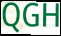
QGH